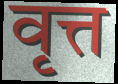
वृत्त